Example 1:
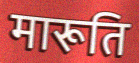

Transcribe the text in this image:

मारूति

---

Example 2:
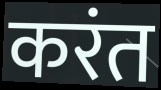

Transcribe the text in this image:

करंत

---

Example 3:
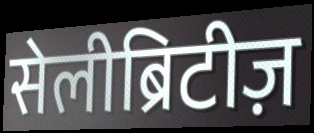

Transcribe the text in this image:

सेलीब्रिटीज़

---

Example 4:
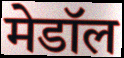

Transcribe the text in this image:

मेडॉल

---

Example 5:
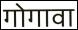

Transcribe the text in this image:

गोगावा